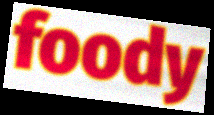
foody